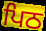
ਪਿਠ